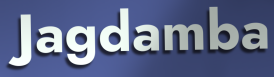
Jagdamba